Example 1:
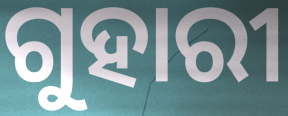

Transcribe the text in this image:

ଗୁହାରୀ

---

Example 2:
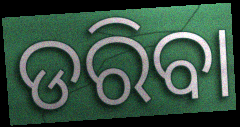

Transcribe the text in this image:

ଡରିବା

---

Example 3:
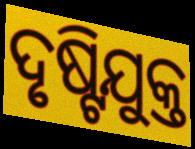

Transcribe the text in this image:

ଦୃଷ୍ଟିଯୁକ୍ତ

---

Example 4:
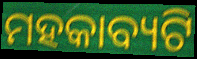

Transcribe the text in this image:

ମହକାବ୍ୟଟି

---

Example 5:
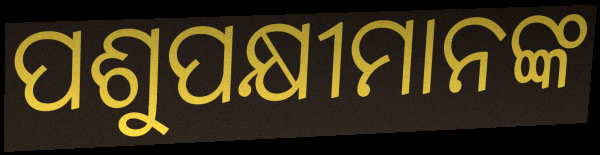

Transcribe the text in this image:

ପଶୁପକ୍ଷୀମାନଙ୍କ